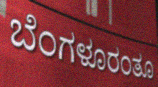
ಬೆಂಗಳೂರಂತೂ